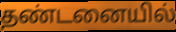
தண்டனையில்